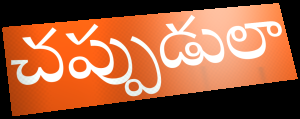
చప్పుడులా